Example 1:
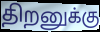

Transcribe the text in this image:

திறனுக்கு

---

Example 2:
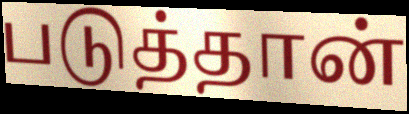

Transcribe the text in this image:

படுத்தான்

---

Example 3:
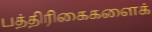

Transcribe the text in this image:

பத்திரிகைகளைக்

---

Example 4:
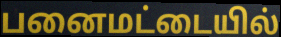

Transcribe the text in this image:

பனைமட்டையில்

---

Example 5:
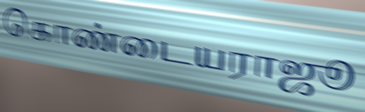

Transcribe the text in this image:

கொண்டையராஜூ